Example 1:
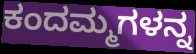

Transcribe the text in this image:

ಕಂದಮ್ಮಗಳನ್ನ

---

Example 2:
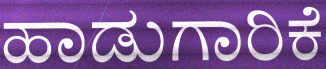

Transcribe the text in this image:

ಹಾಡುಗಾರಿಕೆ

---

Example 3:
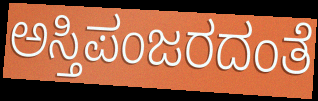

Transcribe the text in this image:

ಅಸ್ತಿಪಂಜರದಂತೆ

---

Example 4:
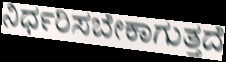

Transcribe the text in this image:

ನಿರ್ಧರಿಸಬೇಕಾಗುತ್ತದೆ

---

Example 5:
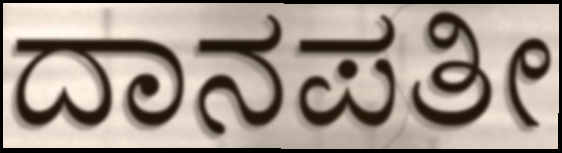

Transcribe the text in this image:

ದಾನಪತೀ